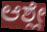
ಆಶ್ಲೇ